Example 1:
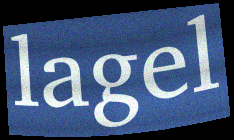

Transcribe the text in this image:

lagel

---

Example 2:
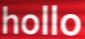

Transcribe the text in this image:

hollo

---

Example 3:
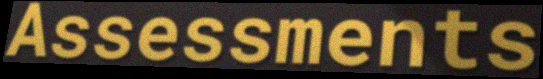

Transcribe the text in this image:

Assessments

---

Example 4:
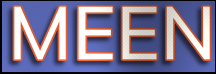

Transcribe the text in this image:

MEEN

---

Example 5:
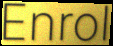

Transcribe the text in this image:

Enrol